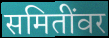
समितींवर